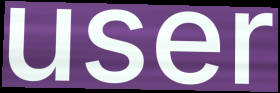
user